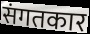
संगतकार